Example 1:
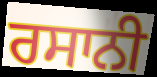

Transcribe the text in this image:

ਰਸਾਨੀ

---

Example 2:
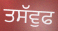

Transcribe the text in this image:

ਤਸੱਵੁਫ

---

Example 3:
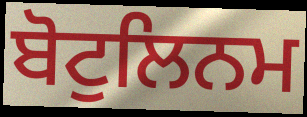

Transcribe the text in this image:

ਬੋਟੁਲਿਨਮ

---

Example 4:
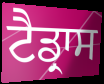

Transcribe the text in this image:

ਟੈਡ੍ਰਾਸ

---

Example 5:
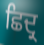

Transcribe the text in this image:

ਛਿਦ੍ਰ